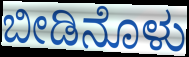
ಬೀಡಿನೊಳು